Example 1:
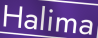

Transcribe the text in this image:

Halima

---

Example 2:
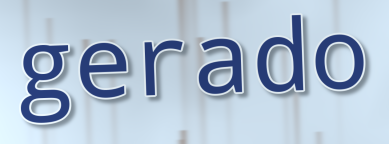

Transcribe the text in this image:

gerado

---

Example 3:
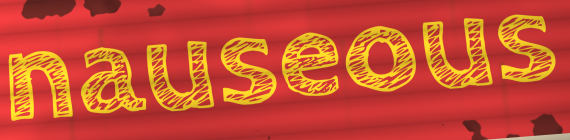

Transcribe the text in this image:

nauseous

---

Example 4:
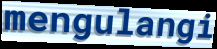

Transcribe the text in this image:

mengulangi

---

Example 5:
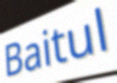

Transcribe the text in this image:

Baitul